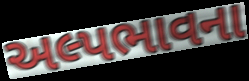
અલ્પભાવના